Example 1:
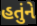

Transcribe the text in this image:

હતુંને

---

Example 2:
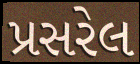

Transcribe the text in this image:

પ્રસરેલ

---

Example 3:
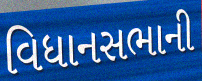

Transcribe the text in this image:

વિધાનસભાની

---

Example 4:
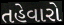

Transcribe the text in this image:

તહેવારો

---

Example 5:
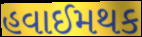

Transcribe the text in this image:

હવાઈમથક